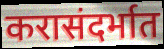
करासंदर्भात